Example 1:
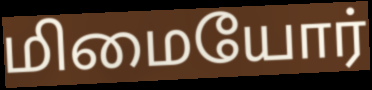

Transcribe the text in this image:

மிமையோர்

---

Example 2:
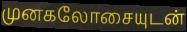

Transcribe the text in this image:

முனகலோசையுடன்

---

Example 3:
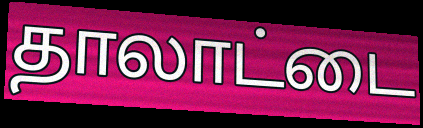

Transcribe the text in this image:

தாலாட்டை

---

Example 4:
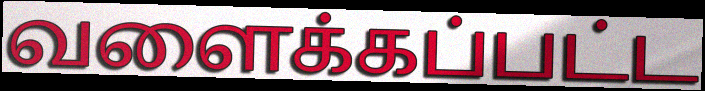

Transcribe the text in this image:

வளைக்கப்பட்ட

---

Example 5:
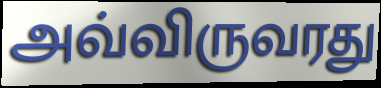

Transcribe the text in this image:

அவ்விருவரது